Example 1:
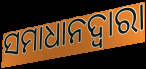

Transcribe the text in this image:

ସମାଧାନଦ୍ୱାରା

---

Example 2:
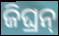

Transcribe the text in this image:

ଜିଘ୍ରନ୍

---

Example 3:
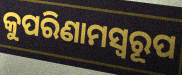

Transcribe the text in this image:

କୁପରିଣାମସ୍ୱରୂପ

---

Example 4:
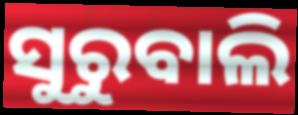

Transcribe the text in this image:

ସୁରୁବାଲି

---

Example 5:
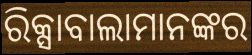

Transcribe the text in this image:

ରିକ୍ସାବାଲାମାନଙ୍କର